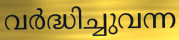
വർദ്ധിച്ചുവന്ന